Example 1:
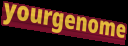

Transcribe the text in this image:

yourgenome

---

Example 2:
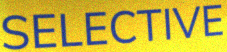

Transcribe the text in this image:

SELECTIVE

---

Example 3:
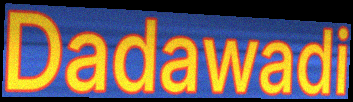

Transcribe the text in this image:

Dadawadi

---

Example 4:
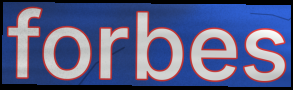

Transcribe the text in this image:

forbes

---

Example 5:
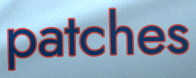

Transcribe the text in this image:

patches